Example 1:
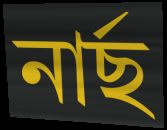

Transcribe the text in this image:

নাৰ্ছ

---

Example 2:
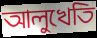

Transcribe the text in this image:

আলুখেতি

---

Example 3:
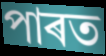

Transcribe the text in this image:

পাৰত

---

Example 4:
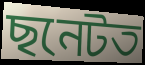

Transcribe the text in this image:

ছনেটত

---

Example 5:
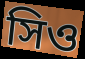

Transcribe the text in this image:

সিও